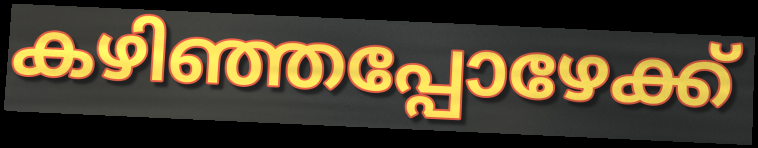
കഴിഞ്ഞപ്പോഴേക്ക്